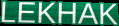
LEKHAK